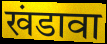
खंडावा